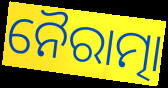
ନୈରାତ୍ମା